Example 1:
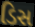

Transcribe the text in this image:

ડિસ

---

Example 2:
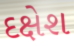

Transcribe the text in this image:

દક્ષેશ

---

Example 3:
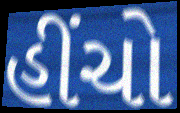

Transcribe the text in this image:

હીંચો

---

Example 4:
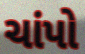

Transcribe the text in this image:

ચાંપો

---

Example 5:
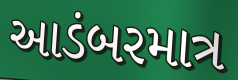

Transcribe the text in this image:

આડંબરમાત્ર